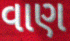
વાણ